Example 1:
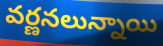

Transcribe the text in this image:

వర్ణనలున్నాయి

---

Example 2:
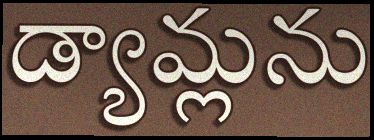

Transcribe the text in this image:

డ్యామ్లను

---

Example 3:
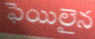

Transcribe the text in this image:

ఫెయిలైన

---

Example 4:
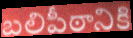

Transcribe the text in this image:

బలిపీఠానికి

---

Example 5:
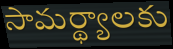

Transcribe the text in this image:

సామర్థ్యాలకు